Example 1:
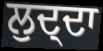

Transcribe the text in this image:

ਲੁਦ੍ਦਾ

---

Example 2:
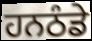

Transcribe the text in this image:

ਹਨਠੰਡੇ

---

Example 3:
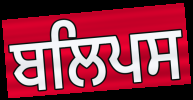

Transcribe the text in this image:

ਬਲਿਪਸ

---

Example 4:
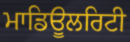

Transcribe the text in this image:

ਮਾਡਿਊਲਰਿਟੀ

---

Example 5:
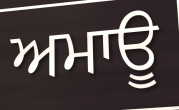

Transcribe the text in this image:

ਅਮਾਊ